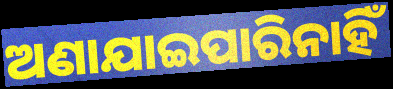
ଅଣାଯାଇପାରିନାହିଁ